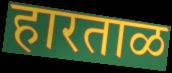
हारताळ